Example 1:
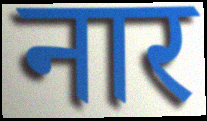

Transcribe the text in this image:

नार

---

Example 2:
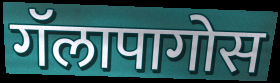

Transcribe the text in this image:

गॅलापागोस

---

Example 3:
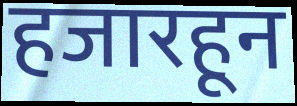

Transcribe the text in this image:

हजारहून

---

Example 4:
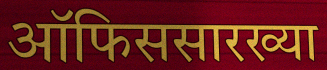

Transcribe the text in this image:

ऑफिससारख्या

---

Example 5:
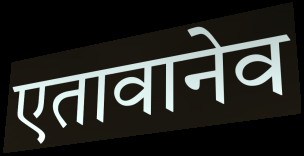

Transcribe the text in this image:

एतावानेव